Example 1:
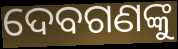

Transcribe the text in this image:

ଦେବଗଣଙ୍କୁ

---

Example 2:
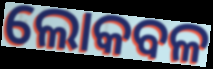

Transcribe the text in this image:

ଲୋକବଳ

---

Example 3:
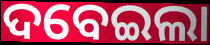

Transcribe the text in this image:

ଦବେଇଲା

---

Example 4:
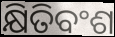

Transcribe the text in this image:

କ୍ଷିତିବଂଶ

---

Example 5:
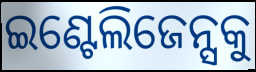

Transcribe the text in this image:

ଇଣ୍ଟେଲିଜେନ୍ସକୁ